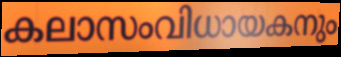
കലാസംവിധായകനും